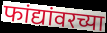
फांद्यांवरच्या